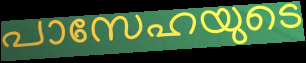
പാസേഹയുടെ